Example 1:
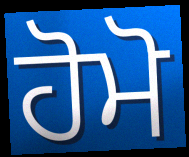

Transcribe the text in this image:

ਹੋਮੋ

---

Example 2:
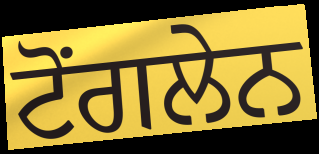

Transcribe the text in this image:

ਟੋਂਗਲੇਨ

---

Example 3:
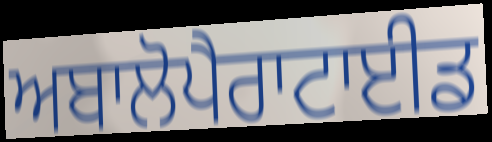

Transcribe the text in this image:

ਅਬਾਲੋਪੈਰਾਟਾਈਡ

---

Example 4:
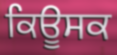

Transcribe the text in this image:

ਕਿਊਸਕ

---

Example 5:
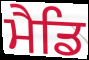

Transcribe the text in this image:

ਮੈਡਿ